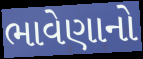
ભાવેણાનો